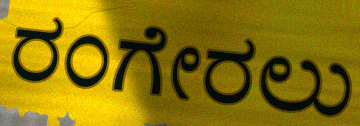
ರಂಗೇರಲು